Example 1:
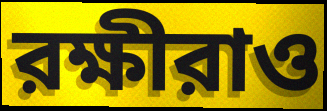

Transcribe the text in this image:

রক্ষীরাও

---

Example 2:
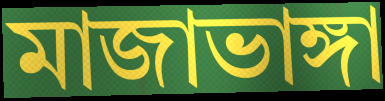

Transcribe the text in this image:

মাজাভাঙ্গা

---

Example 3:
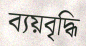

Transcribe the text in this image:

ব্যয়বৃদ্ধি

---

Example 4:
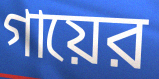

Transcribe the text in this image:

গায়ের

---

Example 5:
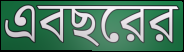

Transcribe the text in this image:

এবছরের